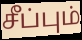
சீப்பும்